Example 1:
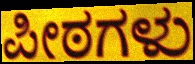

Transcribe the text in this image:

ಪೀಠಗಳು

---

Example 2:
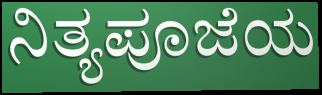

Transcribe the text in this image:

ನಿತ್ಯಪೂಜೆಯ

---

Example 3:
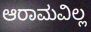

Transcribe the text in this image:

ಆರಾಮವಿಲ್ಲ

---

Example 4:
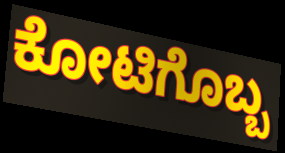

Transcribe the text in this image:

ಕೋಟಿಗೊಬ್ಬ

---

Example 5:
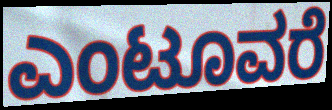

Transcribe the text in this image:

ಎಂಟೂವರೆ